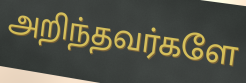
அறிந்தவர்களே